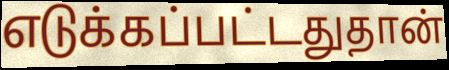
எடுக்கப்பட்டதுதான்